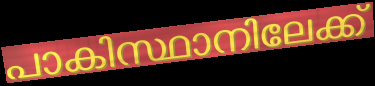
പാകിസ്ഥാനിലേക്ക്